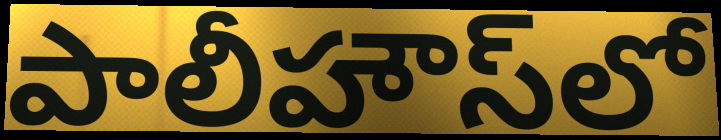
పాలీహౌస్‌లో